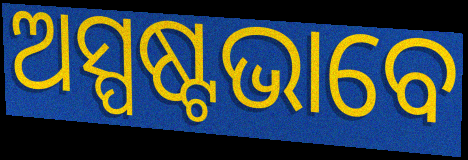
ଅସ୍ପଷ୍ଟଭାବେ